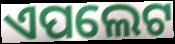
ଏପଲେଟ